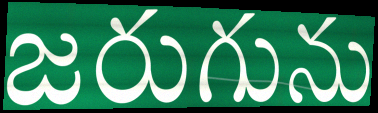
జరుగును